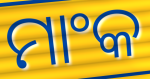
ମାଂକ